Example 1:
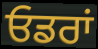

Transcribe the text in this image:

ਓਡਰਾਂ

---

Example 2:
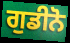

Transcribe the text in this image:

ਗੁਡੀਨੋ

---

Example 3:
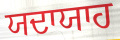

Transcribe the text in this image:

ਯਦਾਯਾਹ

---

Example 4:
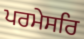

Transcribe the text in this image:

ਪਰਮੇਸਰਿ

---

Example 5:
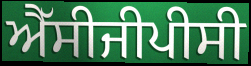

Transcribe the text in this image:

ਐੱਸੀਜੀਪੀਸੀ